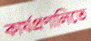
কার্যপ্রণালিতে